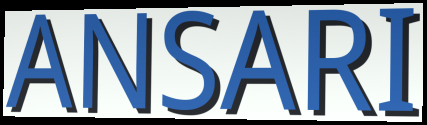
ANSARI